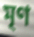
মৃণ